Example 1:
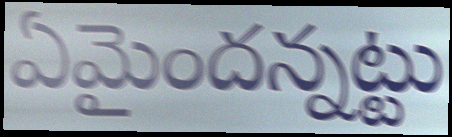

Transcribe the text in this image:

ఏమైందన్నట్టు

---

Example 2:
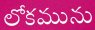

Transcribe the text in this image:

లోకమును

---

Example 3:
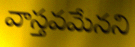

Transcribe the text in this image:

వాస్తవమేనని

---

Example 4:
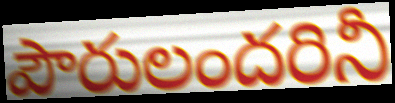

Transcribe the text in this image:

పౌరులందరినీ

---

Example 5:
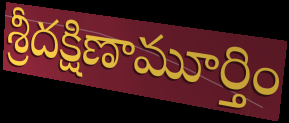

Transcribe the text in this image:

శ్రీదక్షిణామూర్తిం